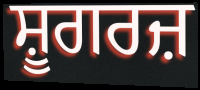
ਸ਼ੂਗਰਜ਼